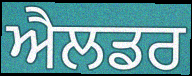
ਐਲਡਰ